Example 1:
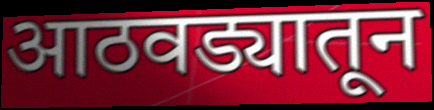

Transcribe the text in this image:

आठवड्यातून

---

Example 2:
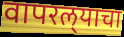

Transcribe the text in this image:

वापरल्याचा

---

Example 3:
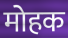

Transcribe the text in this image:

मोहक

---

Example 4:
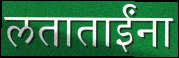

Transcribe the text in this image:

लताताईंना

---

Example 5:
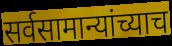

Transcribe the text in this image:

सर्वसामान्यांच्याच